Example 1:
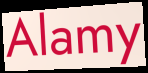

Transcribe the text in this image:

Alamy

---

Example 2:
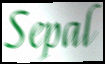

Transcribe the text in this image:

Sepal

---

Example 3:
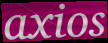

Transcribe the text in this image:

axios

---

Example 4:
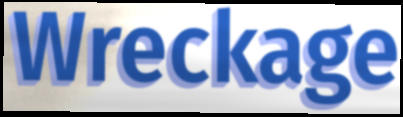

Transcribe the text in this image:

Wreckage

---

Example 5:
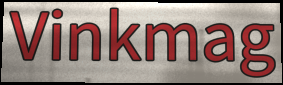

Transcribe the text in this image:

Vinkmag